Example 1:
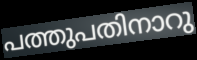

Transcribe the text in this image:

പത്തുപതിനാറു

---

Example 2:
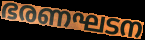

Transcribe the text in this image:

ഭരണഘടന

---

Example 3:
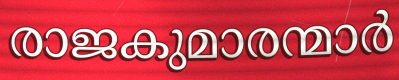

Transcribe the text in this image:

രാജകുമാരന്മാർ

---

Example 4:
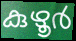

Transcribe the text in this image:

കുഴൂർ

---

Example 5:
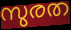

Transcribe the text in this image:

സുരത